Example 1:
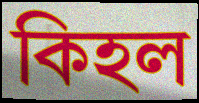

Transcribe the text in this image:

কিহল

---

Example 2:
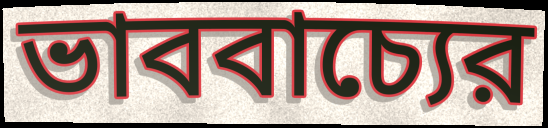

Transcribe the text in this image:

ভাববাচ্যের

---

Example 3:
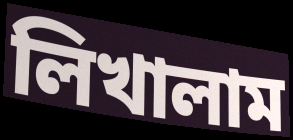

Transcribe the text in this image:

লিখালাম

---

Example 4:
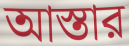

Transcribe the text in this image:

আস্তার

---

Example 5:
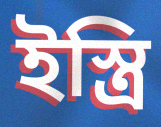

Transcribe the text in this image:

ইস্ত্রি